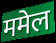
ममेल